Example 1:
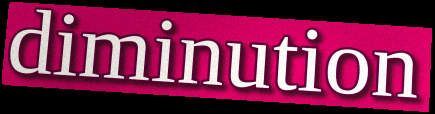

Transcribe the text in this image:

diminution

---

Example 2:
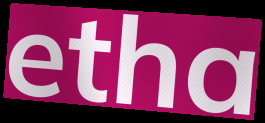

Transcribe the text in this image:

etha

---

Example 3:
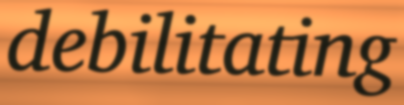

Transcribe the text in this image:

debilitating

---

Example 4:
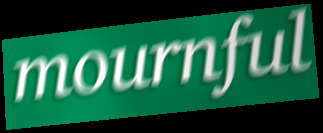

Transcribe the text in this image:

mournful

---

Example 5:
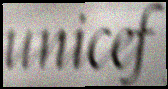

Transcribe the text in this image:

unicef